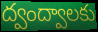
ద్వంద్వాలకు